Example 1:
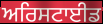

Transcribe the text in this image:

ਅਰਿਸਟਾਈਡ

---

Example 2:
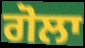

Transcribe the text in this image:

ਗੋਲਾ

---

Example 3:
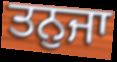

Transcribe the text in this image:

ਤਨੁਜਾ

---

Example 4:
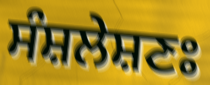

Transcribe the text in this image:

ਸੰਸ਼ਲੇਸ਼ਣਃ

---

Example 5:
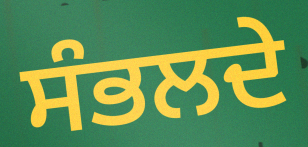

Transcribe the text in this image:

ਸੰਭਲਦੇ